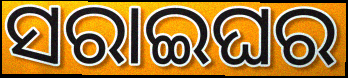
ସରାଇଘର